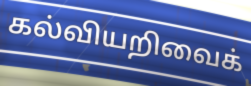
கல்வியறிவைக்